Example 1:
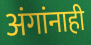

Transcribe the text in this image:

अंगांनाही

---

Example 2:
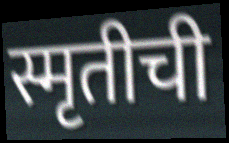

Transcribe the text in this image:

स्मृतीची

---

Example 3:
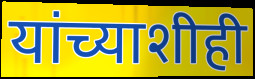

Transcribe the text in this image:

यांच्याशीही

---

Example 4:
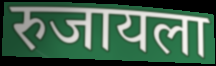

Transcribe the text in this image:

रुजायला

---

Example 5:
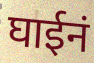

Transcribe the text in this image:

घाईनं